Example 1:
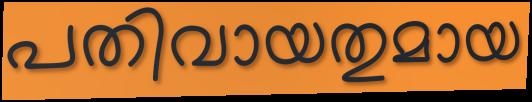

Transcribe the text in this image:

പതിവായതുമായ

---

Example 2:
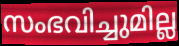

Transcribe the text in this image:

സംഭവിച്ചുമില്ല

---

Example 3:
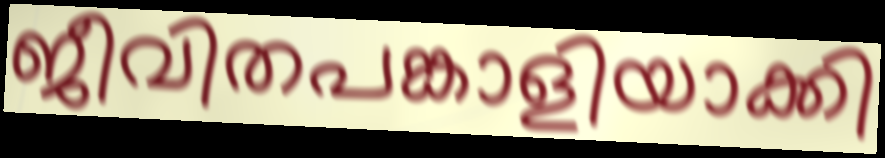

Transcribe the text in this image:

ജീവിതപങ്കാളിയാക്കി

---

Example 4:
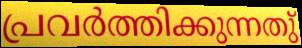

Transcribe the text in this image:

പ്രവർത്തിക്കുന്നതു്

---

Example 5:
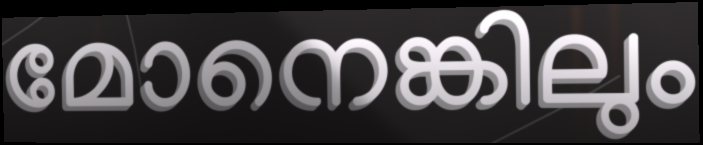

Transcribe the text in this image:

മോനെങ്കിലും